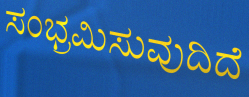
ಸಂಭ್ರಮಿಸುವುದಿದೆ